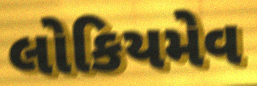
લોકિયમેવ